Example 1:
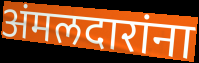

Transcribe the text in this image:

अंमलदारांना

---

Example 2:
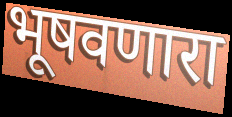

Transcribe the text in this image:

भूषवणारा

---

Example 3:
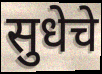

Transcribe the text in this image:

सुधेचे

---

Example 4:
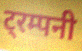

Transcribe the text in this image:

ट्रम्पनी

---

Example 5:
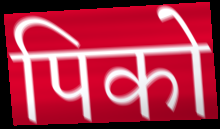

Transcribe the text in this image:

पिको